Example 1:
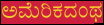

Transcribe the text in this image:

ಅಮೆರಿಕದಂಥ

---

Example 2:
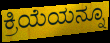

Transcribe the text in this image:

ಕ್ರಿಯೆಯನ್ನೂ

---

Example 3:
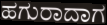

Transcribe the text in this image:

ಹಗುರಾದಾಗ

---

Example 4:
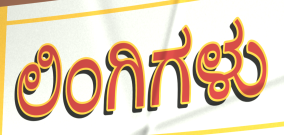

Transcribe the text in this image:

ಲಿಂಗಿಗಳು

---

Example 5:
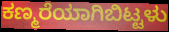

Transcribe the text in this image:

ಕಣ್ಮರೆಯಾಗಿಬಿಟ್ಟಳು